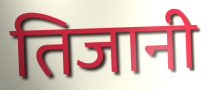
तिजानी